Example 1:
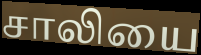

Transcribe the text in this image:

சாலியை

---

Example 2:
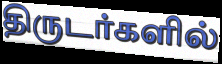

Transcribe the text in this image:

திருடர்களில்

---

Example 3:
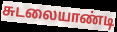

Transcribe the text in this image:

சுடலையாண்டி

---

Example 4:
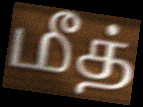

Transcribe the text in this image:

மீத்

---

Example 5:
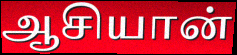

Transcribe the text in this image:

ஆசியான்